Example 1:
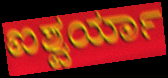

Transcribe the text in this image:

ಐಶ್ವರ್ಯಾ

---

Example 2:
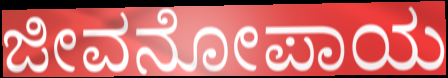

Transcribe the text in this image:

ಜೀವನೋಪಾಯ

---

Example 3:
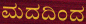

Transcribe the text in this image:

ಮದದಿಂದ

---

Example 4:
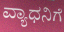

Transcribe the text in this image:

ವ್ಯಾಧನಿಗೆ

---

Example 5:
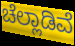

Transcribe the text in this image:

ಚೆಲ್ಲಾಡಿವೆ